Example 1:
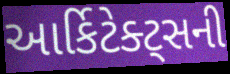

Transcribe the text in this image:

આર્કિટેક્ટ્સની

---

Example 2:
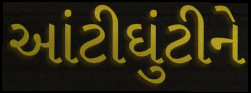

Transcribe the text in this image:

આંટીઘુંટીને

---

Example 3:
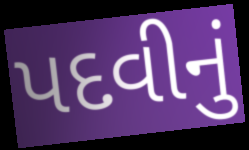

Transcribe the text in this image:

પદવીનું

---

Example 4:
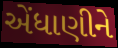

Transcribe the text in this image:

એંધાણીને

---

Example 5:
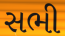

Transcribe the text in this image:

સભી